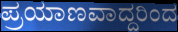
ಪ್ರಯಾಣವಾದ್ದರಿಂದ